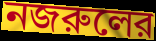
নজরুলের